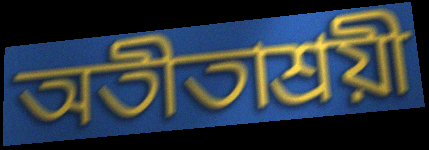
অতীতাশ্রয়ী